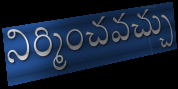
నిర్మించవచ్చు